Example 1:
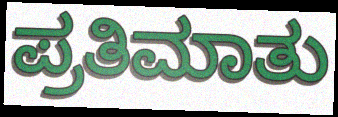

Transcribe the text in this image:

ಪ್ರತಿಮಾತು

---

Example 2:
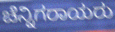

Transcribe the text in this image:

ಚೆನ್ನಿಗರಾಯರು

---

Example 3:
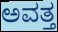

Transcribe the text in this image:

ಅವತ್ತ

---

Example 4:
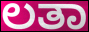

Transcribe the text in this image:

ಲತಾ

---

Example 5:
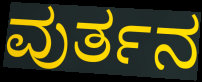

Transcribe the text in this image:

ವುರ್ತನ